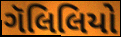
ગૅલિલિયો